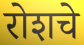
रोशचे